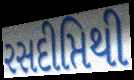
રસદીપ્તિથી